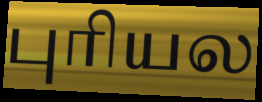
புரியல